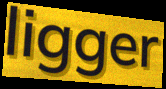
ligger